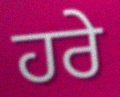
ਹਰੇ